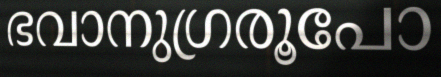
ഭവാനുഗ്രരൂപോ